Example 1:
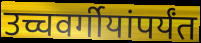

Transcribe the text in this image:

उच्चवर्गीयांपर्यंत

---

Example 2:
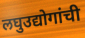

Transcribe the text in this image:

लघुउद्योगांची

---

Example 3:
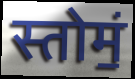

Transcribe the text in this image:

स्तोमं॒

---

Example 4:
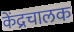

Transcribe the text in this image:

केंद्रचालक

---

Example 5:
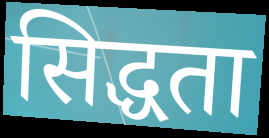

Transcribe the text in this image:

सिद्धता